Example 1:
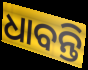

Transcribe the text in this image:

ଧାବନ୍ତି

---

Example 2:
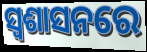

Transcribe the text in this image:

ସ୍ଵଶାସନରେ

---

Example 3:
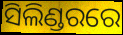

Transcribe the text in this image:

ସିଲିଣ୍ଡରରେ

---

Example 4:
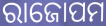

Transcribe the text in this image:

ରାଜୋପମ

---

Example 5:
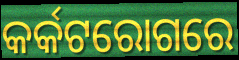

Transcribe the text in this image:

କର୍କଟରୋଗରେ